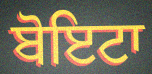
ਬੋਇਟਾ